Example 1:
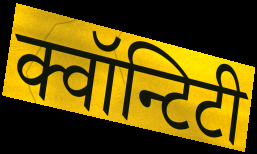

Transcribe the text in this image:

क्वॉन्टिटी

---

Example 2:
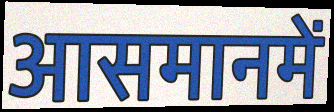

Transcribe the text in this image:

आसमानमें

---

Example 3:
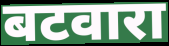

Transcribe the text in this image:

बटवारा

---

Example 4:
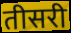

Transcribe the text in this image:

तीसरी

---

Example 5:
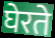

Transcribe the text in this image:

घेरते